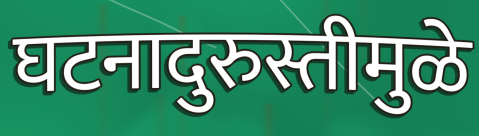
घटनादुरुस्तीमुळे